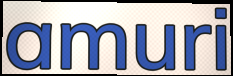
amuri